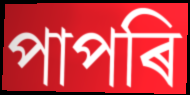
পাপৰি